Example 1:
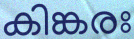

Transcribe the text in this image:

കിങ്കരഃ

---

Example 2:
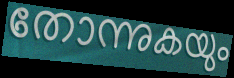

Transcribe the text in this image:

തോന്നുകയും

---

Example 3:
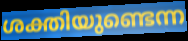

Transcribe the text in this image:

ശക്തിയുണ്ടെന്ന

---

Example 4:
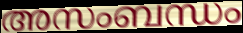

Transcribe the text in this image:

അസംബന്ധം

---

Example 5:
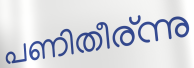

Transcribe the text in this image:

പണിതീര്ന്നു